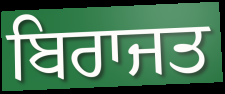
ਬਿਰਾਜਤ